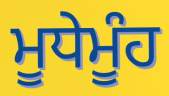
ਮੂਧੇਮੂੰਹ